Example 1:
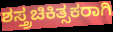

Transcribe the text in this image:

ಶಸ್ತ್ರಚಿಕಿತ್ಸಕರಾಗಿ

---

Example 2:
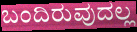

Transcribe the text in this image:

ಬಂದಿರುವುದಲ್ಲ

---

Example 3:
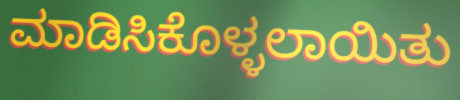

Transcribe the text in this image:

ಮಾಡಿಸಿಕೊಳ್ಳಲಾಯಿತು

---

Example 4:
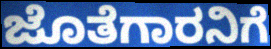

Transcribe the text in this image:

ಜೊತೆಗಾರನಿಗೆ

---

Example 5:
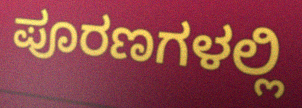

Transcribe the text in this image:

ಪೂರಣಗಳಲ್ಲಿ